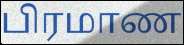
பிரமாண